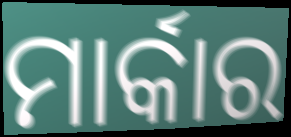
ମାର୍କାର